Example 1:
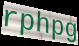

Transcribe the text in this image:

rphpg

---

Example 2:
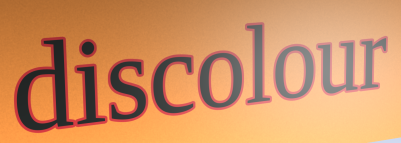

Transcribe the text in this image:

discolour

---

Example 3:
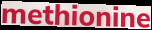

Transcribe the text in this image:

methionine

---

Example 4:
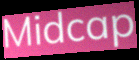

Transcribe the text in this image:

Midcap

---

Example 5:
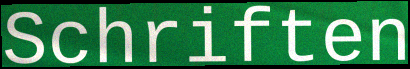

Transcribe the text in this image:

Schriften